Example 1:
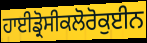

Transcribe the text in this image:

ਹਾਈਡ੍ਰੋਸੀਕਲੋਰੋਕੁਈਨ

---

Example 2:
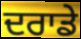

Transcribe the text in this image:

ਦਰਾਡੇ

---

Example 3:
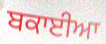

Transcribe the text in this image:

ਬਕਾਈਆ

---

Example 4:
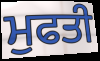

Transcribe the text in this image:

ਮੁਫਤੀ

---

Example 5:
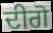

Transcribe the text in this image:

ਦੀਗੋ